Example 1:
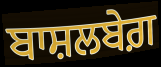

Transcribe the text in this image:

ਬਾਸ਼ਲਬੇਗ਼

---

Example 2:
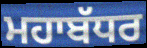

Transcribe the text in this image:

ਮਹਾਬੱਧਰ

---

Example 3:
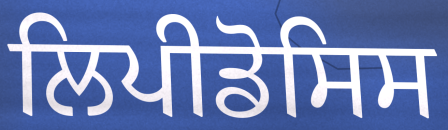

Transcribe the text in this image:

ਲਿਪੀਡੋਸਿਸ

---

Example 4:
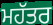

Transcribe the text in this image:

ਮਹੱਤਰ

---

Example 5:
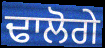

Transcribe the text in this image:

ਢਾਲੋਗੇ